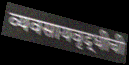
व्यवसायवृद्धीची